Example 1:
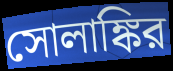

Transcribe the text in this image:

সোলাঙ্কির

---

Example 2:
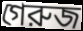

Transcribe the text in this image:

গেরুজ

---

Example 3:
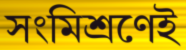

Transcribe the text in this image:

সংমিশ্রণেই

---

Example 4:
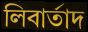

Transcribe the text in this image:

লিবার্তাদ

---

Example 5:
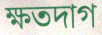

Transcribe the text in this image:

ক্ষতদাগ